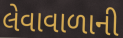
લેવાવાળાની